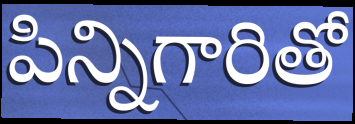
పిన్నిగారితో